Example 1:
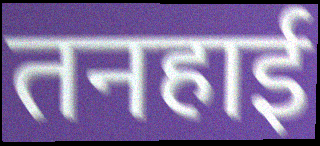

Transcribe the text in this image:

तनहाई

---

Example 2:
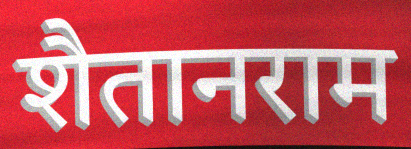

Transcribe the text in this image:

शैतानराम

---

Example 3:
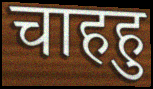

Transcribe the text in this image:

चाहहु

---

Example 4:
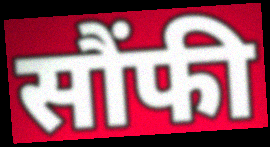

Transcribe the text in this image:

सौंफी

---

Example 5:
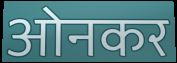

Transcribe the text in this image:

ओनकर